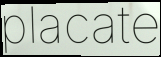
placate